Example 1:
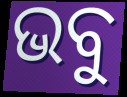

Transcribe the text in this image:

ଭବୁ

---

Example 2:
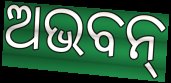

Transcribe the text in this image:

ଅଭବନ୍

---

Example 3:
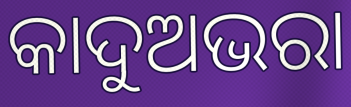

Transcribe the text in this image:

କାଦୁଅଭରା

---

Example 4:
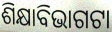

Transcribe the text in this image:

ଶିକ୍ଷାବିଭାଗଟା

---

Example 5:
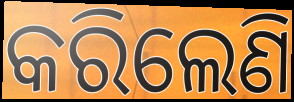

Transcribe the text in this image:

କରିଲେଣି